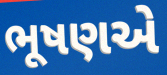
ભૂષણએ